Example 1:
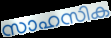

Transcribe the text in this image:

സാഹസിക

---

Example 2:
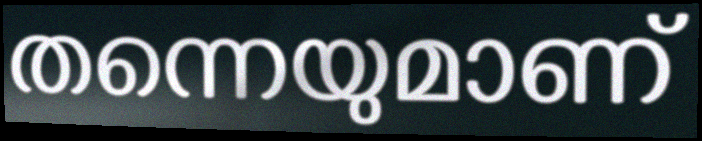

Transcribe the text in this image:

തന്നെയുമാണ്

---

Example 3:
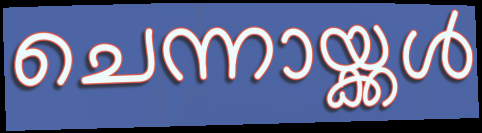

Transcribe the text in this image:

ചെന്നായ്ക്കൾ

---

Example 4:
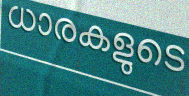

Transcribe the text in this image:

ധാരകളുടെ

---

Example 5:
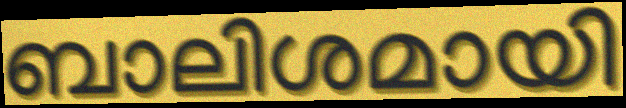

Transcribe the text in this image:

ബാലിശമായി